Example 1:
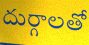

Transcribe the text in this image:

దుర్గాలతో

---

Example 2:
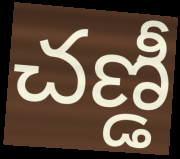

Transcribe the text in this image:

చణ్డీ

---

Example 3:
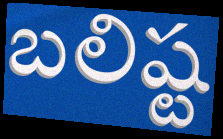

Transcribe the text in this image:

బలిష్ట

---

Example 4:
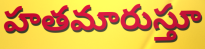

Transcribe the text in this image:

హతమారుస్తూ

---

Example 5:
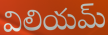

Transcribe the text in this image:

విలియమ్